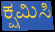
ಕ್ಷಮಿಸಿ